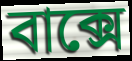
বাক্সে